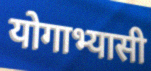
योगाभ्यासी